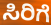
ಸಿರಿಗೆ